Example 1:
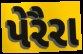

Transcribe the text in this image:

પેરૈરા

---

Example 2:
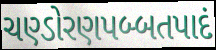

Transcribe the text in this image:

ચણ્ડોરણપબ્બતપાદં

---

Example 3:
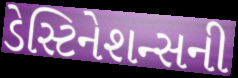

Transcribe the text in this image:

ડેસ્ટિનેશન્સની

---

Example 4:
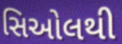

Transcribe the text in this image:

સિઓલથી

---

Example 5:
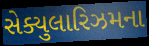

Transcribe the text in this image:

સેક્યુલારિઝમના